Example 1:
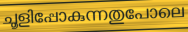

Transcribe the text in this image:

ചൂളിപ്പോകുന്നതുപോലെ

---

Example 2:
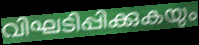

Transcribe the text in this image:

വിഘടിപ്പിക്കുകയും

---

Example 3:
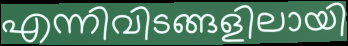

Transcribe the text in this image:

എന്നിവിടങ്ങളിലായി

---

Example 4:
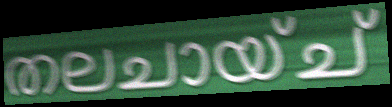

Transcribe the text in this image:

തലചായ്ച്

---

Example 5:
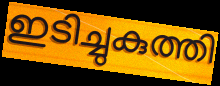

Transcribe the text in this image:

ഇടിച്ചുകുത്തി